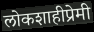
लोकशाहीप्रेमी